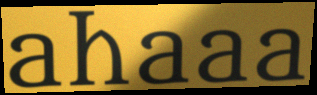
ahaaa